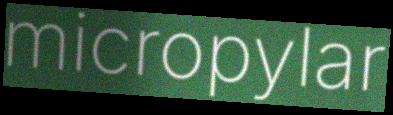
micropylar